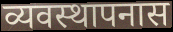
व्यवस्थापनास